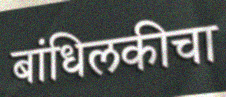
बांधिलकीचा